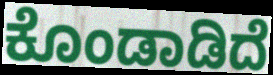
ಕೊಂಡಾಡಿದೆ